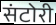
संटोरी